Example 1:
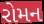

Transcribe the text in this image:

રોમન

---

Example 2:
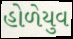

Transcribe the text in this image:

હોળેયુવ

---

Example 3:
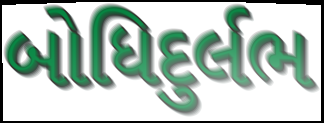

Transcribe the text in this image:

બોધિદુર્લભ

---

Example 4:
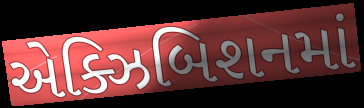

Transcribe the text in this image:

એક્ઝિબિશનમાં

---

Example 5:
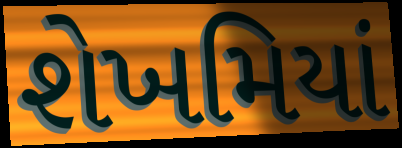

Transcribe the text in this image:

શેખમિયાં